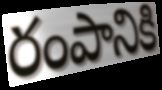
రంపానికి